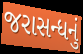
જરાસન્ધનું